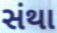
સંથા